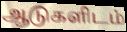
ஆடுகளிடம்